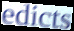
edicts